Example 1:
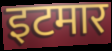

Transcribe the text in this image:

इटमार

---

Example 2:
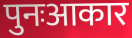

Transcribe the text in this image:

पुनःआकार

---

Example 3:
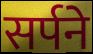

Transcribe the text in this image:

सर्पने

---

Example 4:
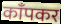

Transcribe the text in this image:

काँपकर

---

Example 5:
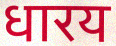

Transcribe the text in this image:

धारय